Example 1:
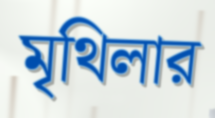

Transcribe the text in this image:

মৃথিলার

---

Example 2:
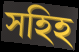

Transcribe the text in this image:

সহিহ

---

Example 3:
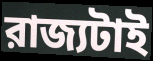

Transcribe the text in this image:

রাজ্যটাই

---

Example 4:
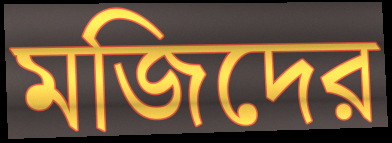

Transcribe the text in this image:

মজিদের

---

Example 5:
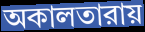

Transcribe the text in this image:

অকালতারায়